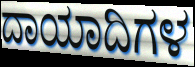
ದಾಯಾದಿಗಳ